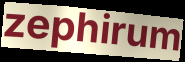
zephirum